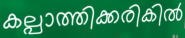
കല്പാത്തിക്കരികിൽ